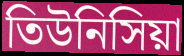
তিউনিসিয়া